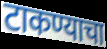
टाकण्याचा